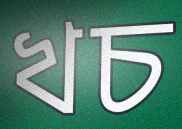
খচ